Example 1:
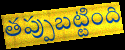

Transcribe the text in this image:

తప్పుబట్టింది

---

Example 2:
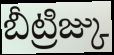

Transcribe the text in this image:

బీట్రిజ్కు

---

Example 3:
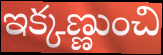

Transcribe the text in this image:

ఇక్కణ్ణుంచి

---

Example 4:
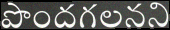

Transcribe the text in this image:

పొందగలనని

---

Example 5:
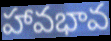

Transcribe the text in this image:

హావభావ